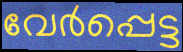
വേർപ്പെട്ട